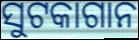
ସୁଟକାଗାନ